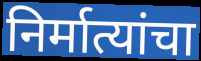
निर्मात्यांचा